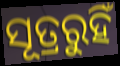
ସୂତ୍ରରୁହିଁ